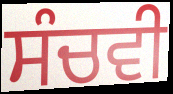
ਸੰਚਵੀ